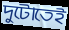
দুটোতেই